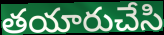
తయారుచేసి